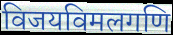
विजयविमलगणि